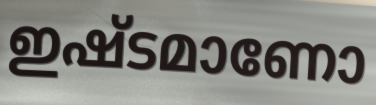
ഇഷ്ടമാണോ